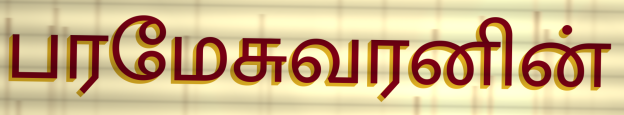
பரமேசுவரனின்